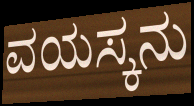
ವಯಸ್ಕನು